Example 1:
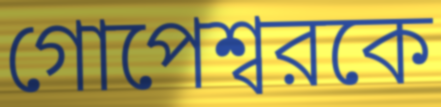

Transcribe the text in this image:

গোপেশ্বরকে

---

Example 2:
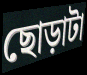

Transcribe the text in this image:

ছোড়াটা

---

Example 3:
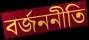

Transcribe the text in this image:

বর্জননীতি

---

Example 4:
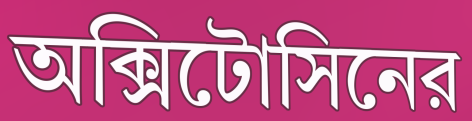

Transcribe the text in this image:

অক্সিটোসিনের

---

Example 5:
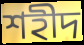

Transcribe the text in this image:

শহীদ